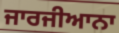
ਜਾਰਜੀਆਨਾ